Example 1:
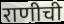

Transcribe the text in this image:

राणीची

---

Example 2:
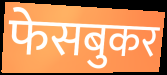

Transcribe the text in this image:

फेसबुकर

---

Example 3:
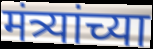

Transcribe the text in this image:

मंत्र्यांच्या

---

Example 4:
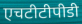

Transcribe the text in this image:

एचटीटीपीडी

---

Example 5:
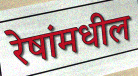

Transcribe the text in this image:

रेषांमधील